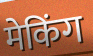
मेकिंग